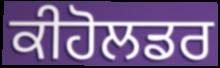
ਕੀਹੋਲਡਰ